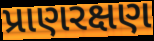
પ્રાણરક્ષણ